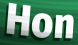
Hon